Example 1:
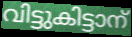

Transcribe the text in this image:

വിട്ടുകിട്ടാന്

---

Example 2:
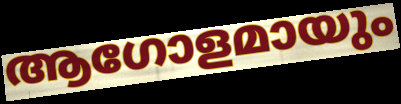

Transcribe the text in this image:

ആഗോളമായും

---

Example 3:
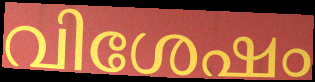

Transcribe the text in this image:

വിശേഷം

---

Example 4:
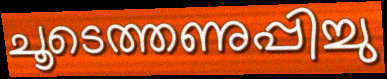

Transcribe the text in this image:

ചൂടെത്തണുപ്പിച്ചു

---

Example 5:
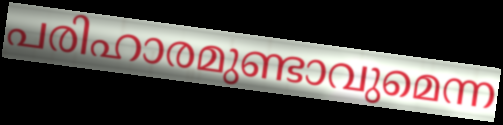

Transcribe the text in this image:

പരിഹാരമുണ്ടാവുമെന്ന